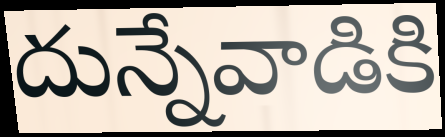
దున్నేవాడికి